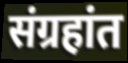
संग्रहांत